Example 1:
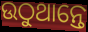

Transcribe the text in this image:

ଉଠୁଥାନ୍ତେ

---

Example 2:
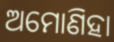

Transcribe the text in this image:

ଅମୋଣିହା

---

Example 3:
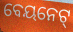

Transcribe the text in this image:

ବେୟନେଟ୍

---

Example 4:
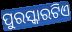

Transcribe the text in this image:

ପୁରସ୍କାରଟିଏ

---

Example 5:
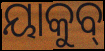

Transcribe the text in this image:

ୟାକୁବ୍